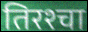
तिरश्चा